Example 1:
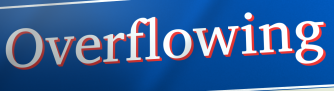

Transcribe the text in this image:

Overflowing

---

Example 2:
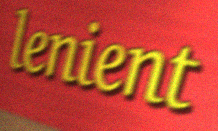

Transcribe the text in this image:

lenient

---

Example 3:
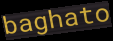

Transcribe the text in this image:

baghato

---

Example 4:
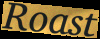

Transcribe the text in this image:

Roast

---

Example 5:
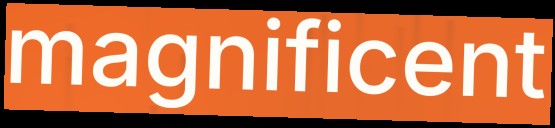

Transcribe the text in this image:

magnificent